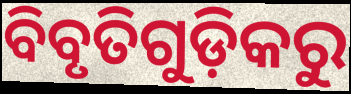
ବିବୃତିଗୁଡ଼ିକରୁ